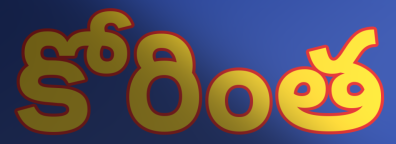
కోరింత